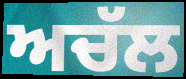
ਅਚੱਲ